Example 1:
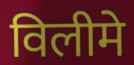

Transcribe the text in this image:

विलीमे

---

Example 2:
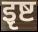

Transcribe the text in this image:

इृष्ट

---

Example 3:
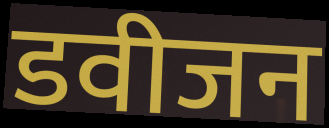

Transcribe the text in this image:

डवीजन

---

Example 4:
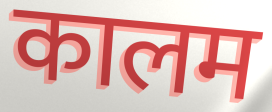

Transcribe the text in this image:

कालम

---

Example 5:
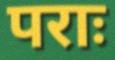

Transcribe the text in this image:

पराः